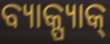
ବ୍ୟାକ୍ପ୍ୟାକ୍